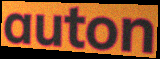
auton